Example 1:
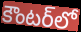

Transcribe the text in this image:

కౌంటర్‌లో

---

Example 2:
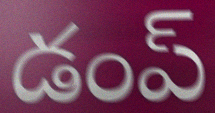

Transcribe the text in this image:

డంప్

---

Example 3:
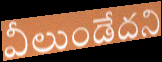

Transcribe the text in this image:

వీలుండేదని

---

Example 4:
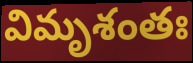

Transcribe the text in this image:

విమృశంతః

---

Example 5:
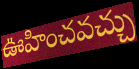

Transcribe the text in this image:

ఊహించవచ్చు